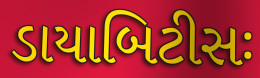
ડાયાબિટીસઃ